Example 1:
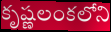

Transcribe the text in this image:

కృష్ణలంకలోని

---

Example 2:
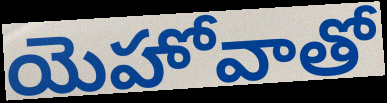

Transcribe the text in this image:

యెహోవాతో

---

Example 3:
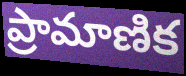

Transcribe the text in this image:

ప్రామాణిక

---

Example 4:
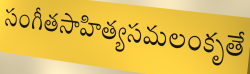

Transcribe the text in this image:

సంగీతసాహిత్యసమలంకృతే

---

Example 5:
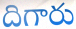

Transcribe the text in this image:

దిగారు